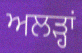
ਅਲੜ੍ਹਾਂ